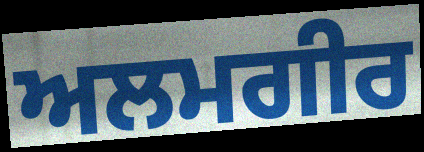
ਅਲਮਗੀਰ